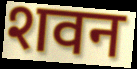
शवन